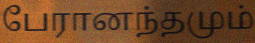
பேரானந்தமும்